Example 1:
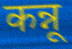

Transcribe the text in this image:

कन्नू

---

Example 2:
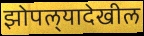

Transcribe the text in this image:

झोपल्यादेखील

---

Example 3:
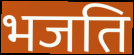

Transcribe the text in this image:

भजति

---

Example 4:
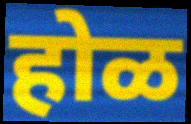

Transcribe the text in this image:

होळ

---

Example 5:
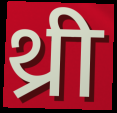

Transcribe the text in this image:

थ्री